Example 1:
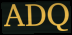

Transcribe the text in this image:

ADQ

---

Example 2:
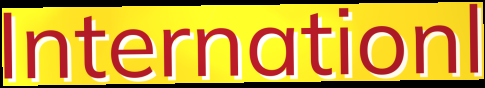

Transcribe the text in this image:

Internationl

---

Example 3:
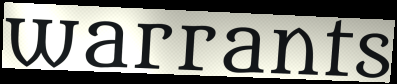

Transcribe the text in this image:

warrants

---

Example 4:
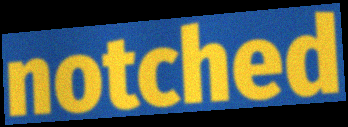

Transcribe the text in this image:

notched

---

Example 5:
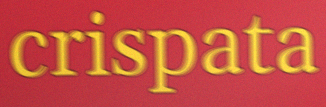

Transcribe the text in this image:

crispata